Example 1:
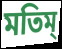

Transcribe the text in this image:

মতিম্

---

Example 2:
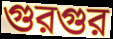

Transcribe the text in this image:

গুরগুর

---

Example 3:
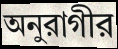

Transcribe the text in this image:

অনুরাগীর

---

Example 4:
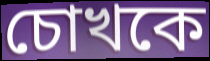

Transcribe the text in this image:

চোখকে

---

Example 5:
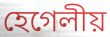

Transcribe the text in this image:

হেগেলীয়